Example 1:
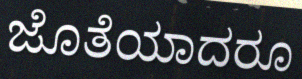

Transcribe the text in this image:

ಜೊತೆಯಾದರೂ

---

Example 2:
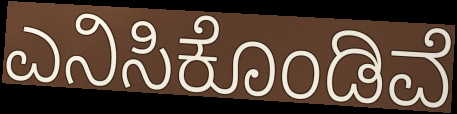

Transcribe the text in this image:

ಎನಿಸಿಕೊಂಡಿವೆ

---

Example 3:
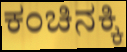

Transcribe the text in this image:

ಕಂಚಿನಕ್ಕಿ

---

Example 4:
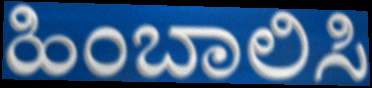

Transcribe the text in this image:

ಹಿಂಬಾಲಿಸಿ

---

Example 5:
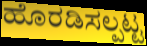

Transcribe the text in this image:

ಹೊರಡಿಸಲ್ಪಟ್ಟ